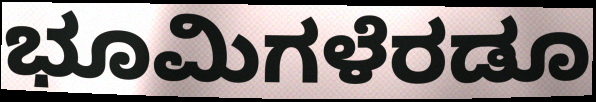
ಭೂಮಿಗಳೆರಡೂ